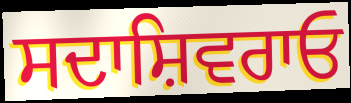
ਸਦਾਸ਼ਿਵਰਾਓ